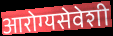
आरोग्यसेवेशी